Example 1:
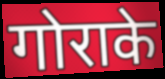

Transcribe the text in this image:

गोराके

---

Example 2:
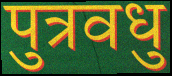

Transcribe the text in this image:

पुत्रवधु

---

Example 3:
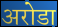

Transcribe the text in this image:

अरोडा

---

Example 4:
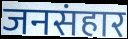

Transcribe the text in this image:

जनसंहार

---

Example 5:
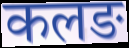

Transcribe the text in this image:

कलङ